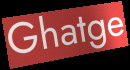
Ghatge